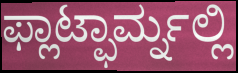
ಫ್ಲಾಟ್ಫಾರ್ಮ್ನಲ್ಲಿ